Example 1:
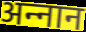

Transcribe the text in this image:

अन्नान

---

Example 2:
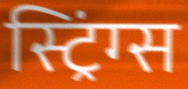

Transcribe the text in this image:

स्ट्रिंग्स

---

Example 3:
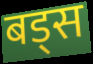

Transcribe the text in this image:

बड्स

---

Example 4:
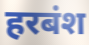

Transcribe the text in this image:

हरबंश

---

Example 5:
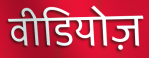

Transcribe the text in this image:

वीडियोज़